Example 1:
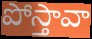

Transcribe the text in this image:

పోస్తావా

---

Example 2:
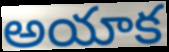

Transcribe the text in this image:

అయాక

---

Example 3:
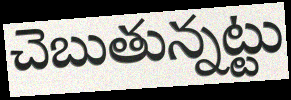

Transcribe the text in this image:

చెబుతున్నట్టు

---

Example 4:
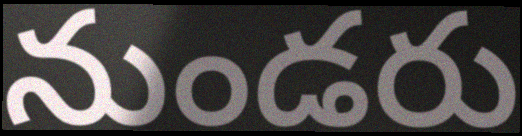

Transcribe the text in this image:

నుండరు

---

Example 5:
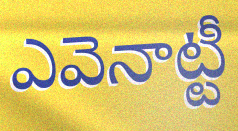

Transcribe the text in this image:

ఎవెనాట్టీ